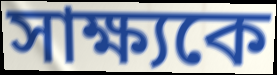
সাক্ষ্যকে